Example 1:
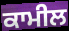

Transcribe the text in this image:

ਕਾਮੀਲ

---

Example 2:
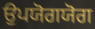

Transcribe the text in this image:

ਉਪਯੋਗਯੋਗ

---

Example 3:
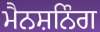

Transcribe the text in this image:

ਮੈਨਸ਼ਨਿੰਗ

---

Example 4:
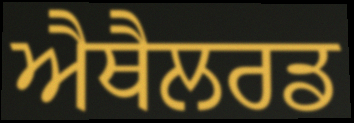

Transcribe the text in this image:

ਐਥੈਲਰਡ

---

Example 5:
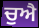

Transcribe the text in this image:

ਚੁਐ